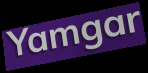
Yamgar